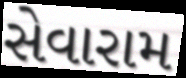
સેવારામ